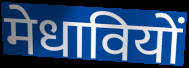
मेधावियों